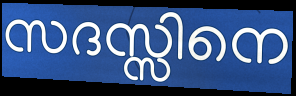
സദസ്സിനെ